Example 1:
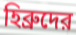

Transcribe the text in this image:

হিব্রুদের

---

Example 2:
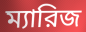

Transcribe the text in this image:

ম্যারিজ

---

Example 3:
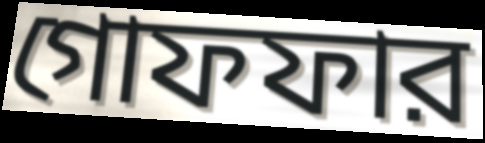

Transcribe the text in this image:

গোফফার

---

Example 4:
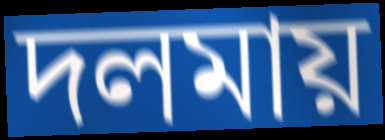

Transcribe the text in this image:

দলমায়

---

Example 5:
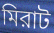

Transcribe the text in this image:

মিরাট